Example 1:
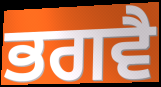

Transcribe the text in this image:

ਭਗਵੈ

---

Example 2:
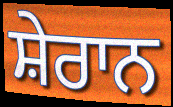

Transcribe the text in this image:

ਸ਼ੇਰਾਨ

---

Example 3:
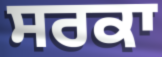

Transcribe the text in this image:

ਸਰਕਾ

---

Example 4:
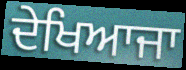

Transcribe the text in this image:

ਦੇਖਿਆਜਾ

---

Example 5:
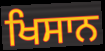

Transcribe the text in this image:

ਖਿਸਾਨ